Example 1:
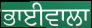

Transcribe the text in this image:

ਭਾਈਵਾਲਾ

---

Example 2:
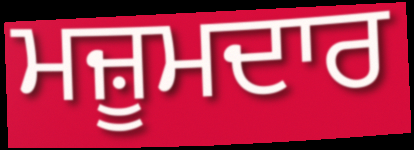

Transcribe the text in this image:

ਮਜ਼ੂਮਦਾਰ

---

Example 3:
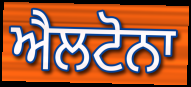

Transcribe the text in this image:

ਐਲਟੋਨਾ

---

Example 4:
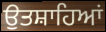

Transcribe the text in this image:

ਉਤਸ਼ਾਹਿਆਂ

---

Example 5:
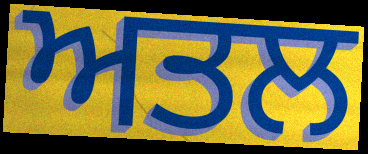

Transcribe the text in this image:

ਅਤਲ